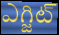
ఎగ్జిట్